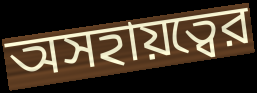
অসহায়ত্বের